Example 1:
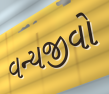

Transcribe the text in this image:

વન્યજીવો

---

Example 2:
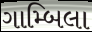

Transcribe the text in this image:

ગામ્બિલા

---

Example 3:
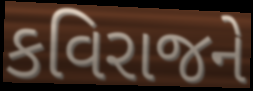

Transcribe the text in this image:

કવિરાજને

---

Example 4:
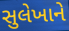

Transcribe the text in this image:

સુલેખાને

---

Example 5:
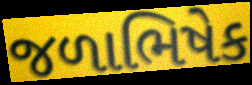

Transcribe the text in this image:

જળાભિષેક